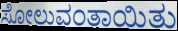
ಸೋಲುವಂತಾಯಿತು